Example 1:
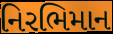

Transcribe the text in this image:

નિરભિમાન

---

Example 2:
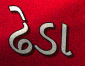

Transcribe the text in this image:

ઢેડા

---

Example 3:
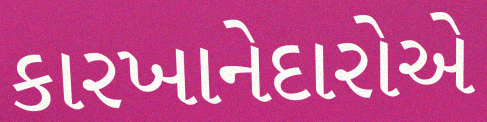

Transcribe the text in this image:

કારખાનેદારોએ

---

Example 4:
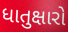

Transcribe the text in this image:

ધાતુક્ષારો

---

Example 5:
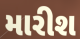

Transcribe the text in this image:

મારીશ